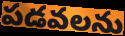
పడవలను